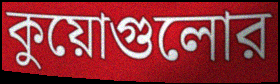
কুয়োগুলোর